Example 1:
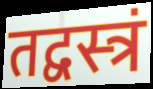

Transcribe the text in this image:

तद्वस्त्रं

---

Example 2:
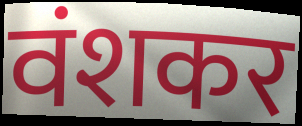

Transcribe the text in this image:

वंशकर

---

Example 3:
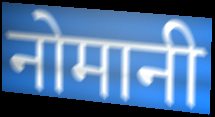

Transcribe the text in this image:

नोमानी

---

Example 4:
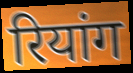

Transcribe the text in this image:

रियांग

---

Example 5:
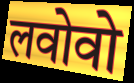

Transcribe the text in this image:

लवोवो